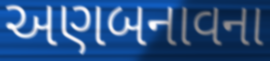
અણબનાવના